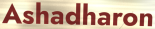
Ashadharon